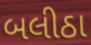
બલીઠા